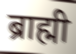
ब्राह्मी